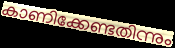
കാണിക്കേണ്ടതിന്നും